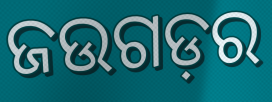
ଜଉଗଡ଼ର